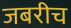
जबरीच